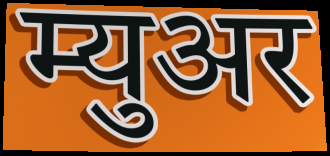
म्युअर